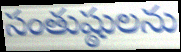
సంతుష్ఠులను